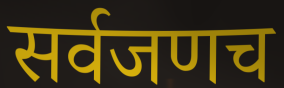
सर्वजणच